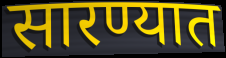
सारण्यात